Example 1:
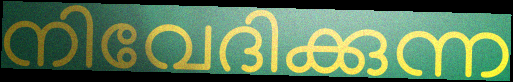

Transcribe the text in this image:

നിവേദിക്കുന്ന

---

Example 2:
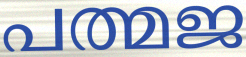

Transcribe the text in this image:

പത്മജ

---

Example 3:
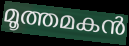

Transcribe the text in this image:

മൂത്തമകൻ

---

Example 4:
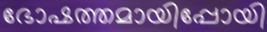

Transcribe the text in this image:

ഭോഷത്തമായിപ്പോയി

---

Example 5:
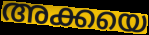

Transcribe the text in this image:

അക്കയെ